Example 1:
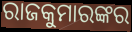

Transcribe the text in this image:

ରାଜକୁମାରଙ୍କର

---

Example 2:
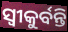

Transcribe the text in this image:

ସ୍ଵୀକୁର୍ବନ୍ତି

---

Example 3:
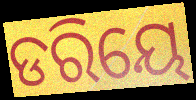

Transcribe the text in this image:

ଡରିୟେ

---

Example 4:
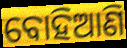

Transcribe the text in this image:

ବୋହିଆଣି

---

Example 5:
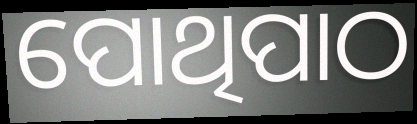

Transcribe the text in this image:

ପୋଥିପାଠ